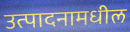
उत्पादनामधील